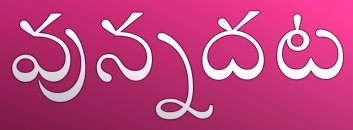
వున్నదట